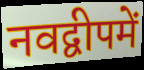
नवद्वीपमें